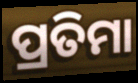
ପ୍ରତିମା